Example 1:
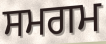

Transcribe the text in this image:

ਸਮਗਮ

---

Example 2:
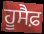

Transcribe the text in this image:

ਹੂਸੈਫ਼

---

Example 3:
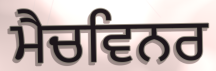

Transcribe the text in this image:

ਮੈਚਵਿਨਰ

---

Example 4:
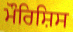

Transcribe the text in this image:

ਮੌਰਿਸ਼ਿਸ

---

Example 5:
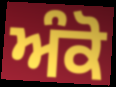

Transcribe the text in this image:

ਅੰਕੋ